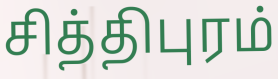
சித்திபுரம்